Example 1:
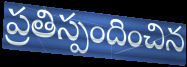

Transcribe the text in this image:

ప్రతిస్పందించిన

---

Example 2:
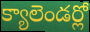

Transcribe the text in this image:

క్యాలెండర్లో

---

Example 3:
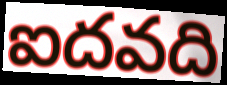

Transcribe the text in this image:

ఐదవది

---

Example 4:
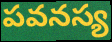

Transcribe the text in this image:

పవనస్య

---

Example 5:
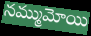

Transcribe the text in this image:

నమ్ముమోయి